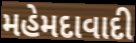
મહેમદાવાદી